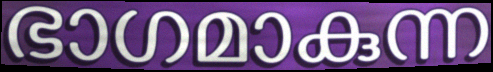
ഭാഗമാകുന്ന